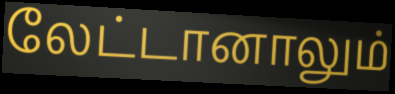
லேட்டானாலும்